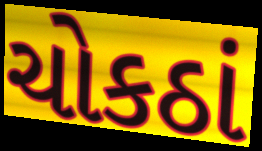
ચોકઠાં